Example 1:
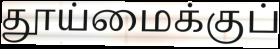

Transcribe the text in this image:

தூய்மைக்குப்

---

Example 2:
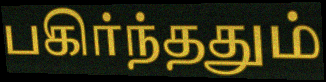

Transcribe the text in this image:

பகிர்ந்ததும்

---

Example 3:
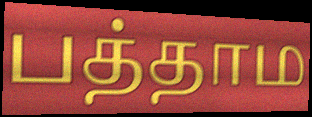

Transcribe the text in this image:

பத்தாம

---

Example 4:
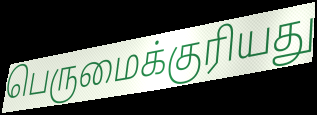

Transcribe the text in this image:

பெருமைக்குரியது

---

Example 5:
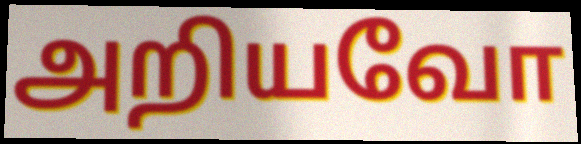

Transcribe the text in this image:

அறியவோ